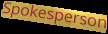
Spokesperson